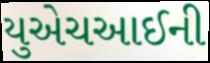
યુએચઆઈની